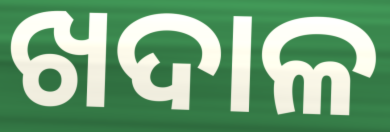
ଖଦାଳ